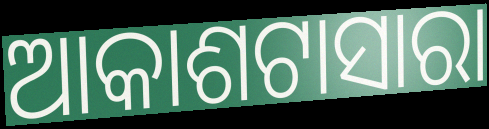
ଆକାଶଟାସାରା